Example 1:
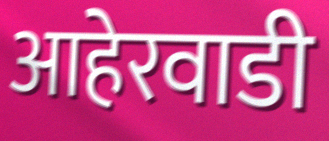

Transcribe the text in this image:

आहेरवाडी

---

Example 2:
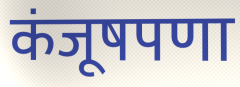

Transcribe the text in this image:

कंजूषपणा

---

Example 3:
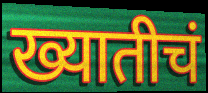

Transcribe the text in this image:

ख्यातीचं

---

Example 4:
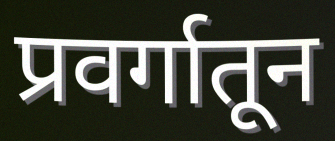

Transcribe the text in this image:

प्रवर्गातून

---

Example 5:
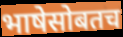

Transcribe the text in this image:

भाषेसोबतच